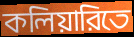
কলিয়ারিতে